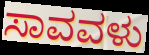
ಸಾವವಳು